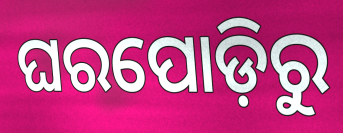
ଘରପୋଡ଼ିରୁ